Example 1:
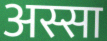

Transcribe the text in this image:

अस्सा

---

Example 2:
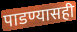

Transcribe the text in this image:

पाडण्यासही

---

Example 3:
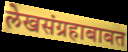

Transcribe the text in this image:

लेखसंग्रहाबाबत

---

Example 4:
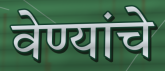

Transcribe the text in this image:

वेण्यांचे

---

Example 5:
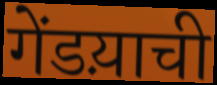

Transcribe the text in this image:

गेंडय़ाची